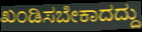
ಖಂಡಿಸಬೇಕಾದದ್ದು